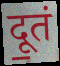
दू॒तं